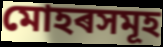
মোহৰসমূহ